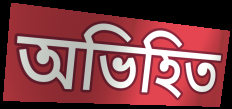
অভিহিত